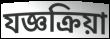
যজ্ঞক্রিয়া